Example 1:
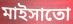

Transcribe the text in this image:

মাইসাতো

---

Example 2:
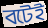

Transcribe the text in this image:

বটেই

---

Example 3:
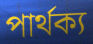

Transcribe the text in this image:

পার্থক্য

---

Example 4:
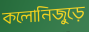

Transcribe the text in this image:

কলোনিজুড়ে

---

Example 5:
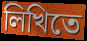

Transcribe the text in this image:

লিখিতে